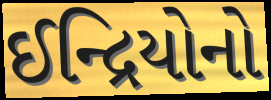
ઈન્દ્રિયોનો